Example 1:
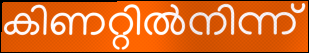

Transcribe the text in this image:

കിണറ്റിൽനിന്ന്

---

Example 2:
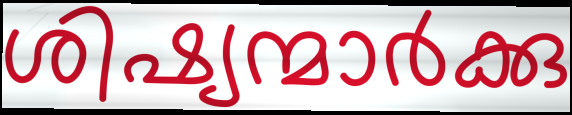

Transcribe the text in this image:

ശിഷ്യന്മാർക്കു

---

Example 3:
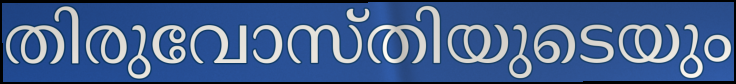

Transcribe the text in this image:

തിരുവോസ്തിയുടെയും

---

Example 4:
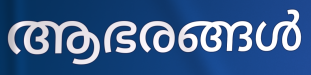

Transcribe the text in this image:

ആഭരങ്ങൾ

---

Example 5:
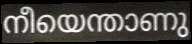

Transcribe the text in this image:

നീയെന്താണു